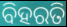
ବିହରତି